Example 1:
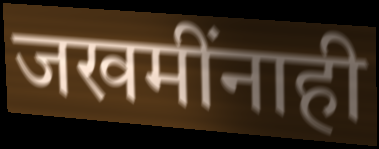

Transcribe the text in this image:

जखमींनाही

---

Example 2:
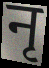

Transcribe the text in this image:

नृ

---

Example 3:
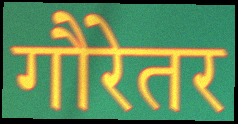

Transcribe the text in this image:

गौरेतर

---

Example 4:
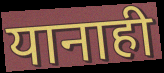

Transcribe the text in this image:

यानाही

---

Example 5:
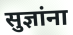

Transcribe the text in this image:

सुज्ञांना